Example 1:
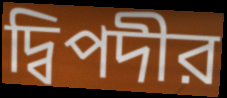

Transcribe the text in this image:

দ্বিপদীর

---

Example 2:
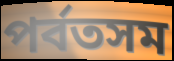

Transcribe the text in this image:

পর্বতসম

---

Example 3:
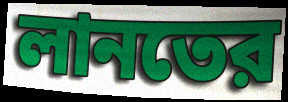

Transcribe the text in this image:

লানতের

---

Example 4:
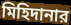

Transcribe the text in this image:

মিহিদানার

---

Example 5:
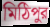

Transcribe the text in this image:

মিঠিপুর